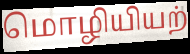
மொழியியற்